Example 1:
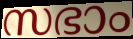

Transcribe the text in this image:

സഭാം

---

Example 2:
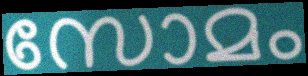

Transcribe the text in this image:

സോമം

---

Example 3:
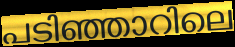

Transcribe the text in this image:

പടിഞ്ഞാറിലെ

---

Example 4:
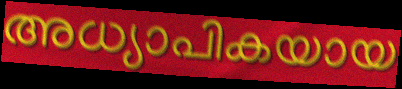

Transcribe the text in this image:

അധ്യാപികയായ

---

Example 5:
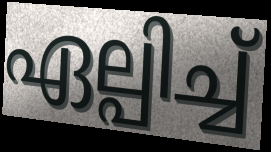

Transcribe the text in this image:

ഏല്പിച്ച്